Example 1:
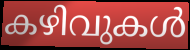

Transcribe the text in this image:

കഴിവുകൾ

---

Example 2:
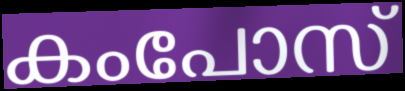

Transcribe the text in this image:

കംപോസ്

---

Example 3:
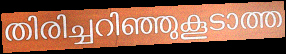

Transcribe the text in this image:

തിരിച്ചറിഞ്ഞുകൂടാത്ത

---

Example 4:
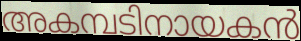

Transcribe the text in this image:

അകമ്പടിനായകൻ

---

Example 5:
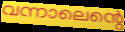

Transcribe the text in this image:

വന്നാലെന്റെ